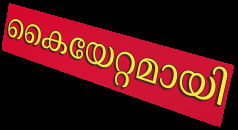
കൈയേറ്റമായി